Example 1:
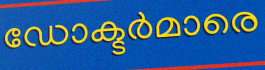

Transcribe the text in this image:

ഡോക്ടർമാരെ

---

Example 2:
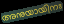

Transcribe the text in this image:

അനുയായിനഃ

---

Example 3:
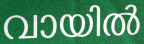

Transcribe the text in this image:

വായിൽ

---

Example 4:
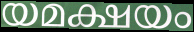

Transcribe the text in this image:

യമക്ഷയം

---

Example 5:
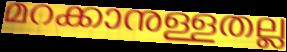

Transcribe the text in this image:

മറക്കാനുള്ളതല്ല